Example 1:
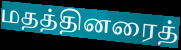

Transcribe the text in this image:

மதத்தினரைத்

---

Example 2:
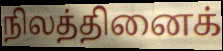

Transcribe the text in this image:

நிலத்தினைக்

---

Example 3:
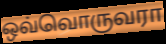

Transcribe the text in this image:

ஒவ்வொருவரா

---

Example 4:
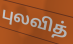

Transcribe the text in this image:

புலவித்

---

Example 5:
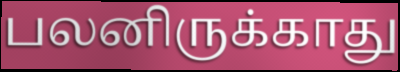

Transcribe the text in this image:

பலனிருக்காது